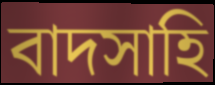
বাদসাহি